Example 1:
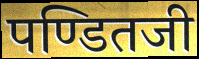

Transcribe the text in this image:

पण्डितजी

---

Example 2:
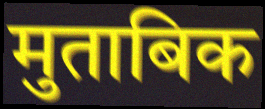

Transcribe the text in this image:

मुताबिक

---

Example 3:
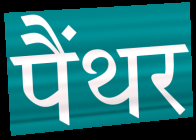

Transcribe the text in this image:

पैंथर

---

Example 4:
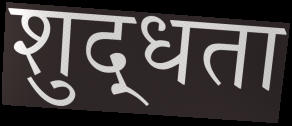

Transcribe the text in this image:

शुद्धता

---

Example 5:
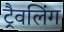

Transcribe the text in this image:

ट्रैवलिंग